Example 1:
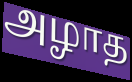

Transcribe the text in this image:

அழாத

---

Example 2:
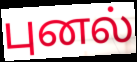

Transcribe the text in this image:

புனல்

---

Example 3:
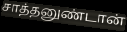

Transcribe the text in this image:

சாத்தனுண்டான்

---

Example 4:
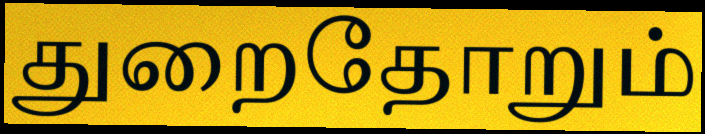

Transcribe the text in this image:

துறைதோறும்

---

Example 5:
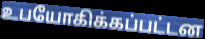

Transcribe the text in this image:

உபயோகிக்கப்பட்டன